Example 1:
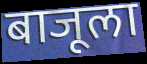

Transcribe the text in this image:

बाजूला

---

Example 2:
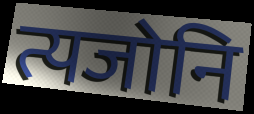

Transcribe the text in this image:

त्यजोनि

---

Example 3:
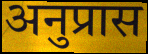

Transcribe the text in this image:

अनुप्रास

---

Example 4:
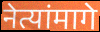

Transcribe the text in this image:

नेत्यांमागे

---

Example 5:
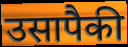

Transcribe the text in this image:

उसापैकी